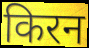
किरन